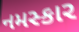
નમસ્કાર